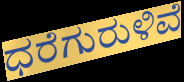
ಧರೆಗುರುಳಿವೆ